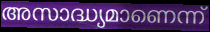
അസാദ്ധ്യമാണെന്ന്